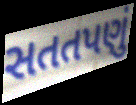
સતતપણું